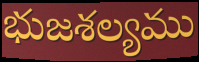
భుజశల్యము